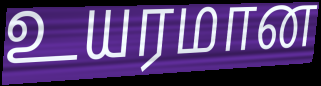
உயரமான